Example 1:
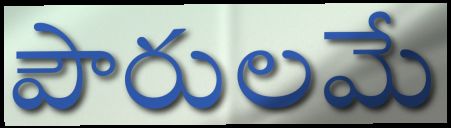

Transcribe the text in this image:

పౌరులమే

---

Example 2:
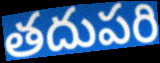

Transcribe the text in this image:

తదుపరి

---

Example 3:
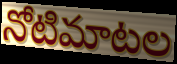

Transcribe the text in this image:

నోటిమాటల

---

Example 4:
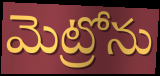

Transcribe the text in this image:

మెట్రోను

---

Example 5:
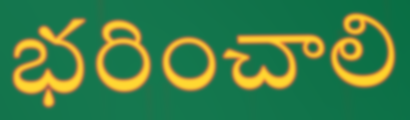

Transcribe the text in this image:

భరించాలి